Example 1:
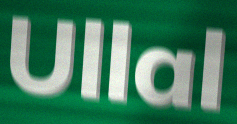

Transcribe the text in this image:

Ullal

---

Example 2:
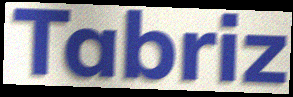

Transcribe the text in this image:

Tabriz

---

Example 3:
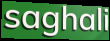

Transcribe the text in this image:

saghali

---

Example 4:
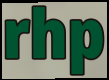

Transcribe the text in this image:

rhp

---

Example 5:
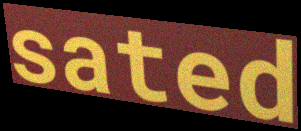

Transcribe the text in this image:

sated